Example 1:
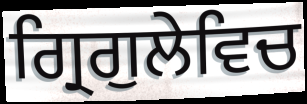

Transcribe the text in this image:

ਗ੍ਰਿਗੁਲੇਵਿਚ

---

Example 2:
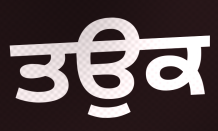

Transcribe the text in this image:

ਤਉਕ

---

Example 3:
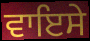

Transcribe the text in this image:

ਵਾਇਸੇ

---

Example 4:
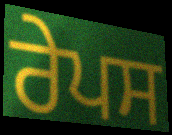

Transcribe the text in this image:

ਰੇਪਸ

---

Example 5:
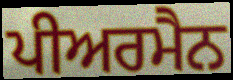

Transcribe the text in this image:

ਪੀਅਰਮੈਨ